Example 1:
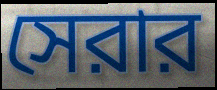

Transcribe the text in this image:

সেরার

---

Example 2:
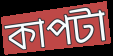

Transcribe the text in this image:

কাপটা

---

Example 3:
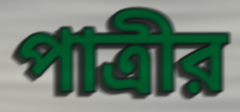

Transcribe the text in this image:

পাত্রীর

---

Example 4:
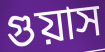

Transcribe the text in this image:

গুয়াস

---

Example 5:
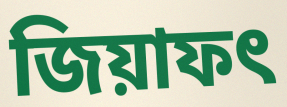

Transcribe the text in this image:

জিয়াফৎ